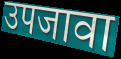
उपजावा